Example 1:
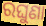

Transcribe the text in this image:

ରଘୁଣା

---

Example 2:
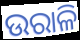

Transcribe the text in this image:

ଉରାଳି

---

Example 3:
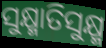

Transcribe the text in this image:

ସୁକ୍ଷ୍ମାତିସୁକ୍ଷ୍ମ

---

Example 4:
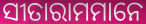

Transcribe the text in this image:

ସୀତାରାମମାନେ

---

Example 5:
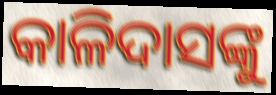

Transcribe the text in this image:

କାଳିଦାସଙ୍କୁ